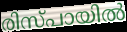
രിസ്പായിൽ